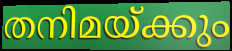
തനിമയ്ക്കും